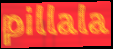
pillala